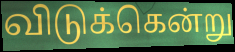
விடுக்கென்று